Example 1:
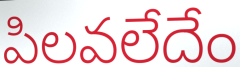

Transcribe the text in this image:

పిలవలేదేం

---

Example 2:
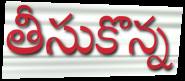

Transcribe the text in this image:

తీసుకొన్న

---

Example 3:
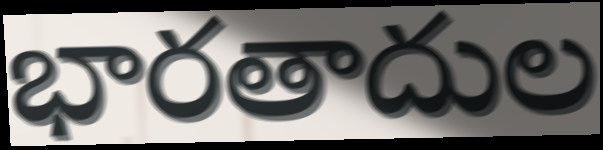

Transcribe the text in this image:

భారతాదుల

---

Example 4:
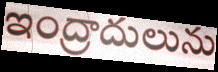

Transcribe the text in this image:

ఇంద్రాదులును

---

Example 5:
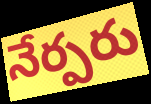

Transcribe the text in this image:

నేర్పరు